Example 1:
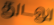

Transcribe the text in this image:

துடலு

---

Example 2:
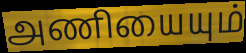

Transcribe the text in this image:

அணியையும்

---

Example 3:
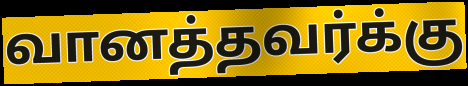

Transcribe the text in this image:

வானத்தவர்க்கு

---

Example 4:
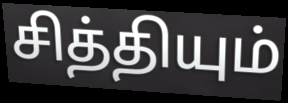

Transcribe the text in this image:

சித்தியும்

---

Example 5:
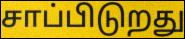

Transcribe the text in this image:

சாப்பிடுறது